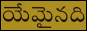
యేమైనది